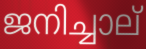
ജനിച്ചാല്